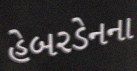
હેબરડેનના